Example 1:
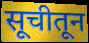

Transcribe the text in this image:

सूचीतून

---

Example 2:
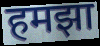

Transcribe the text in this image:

हमझा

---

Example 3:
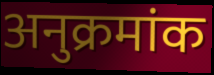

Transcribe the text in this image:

अनुक्रमांक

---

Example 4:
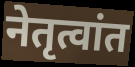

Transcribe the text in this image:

नेतृत्वांत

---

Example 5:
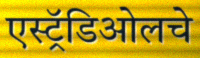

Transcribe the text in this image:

एस्ट्रॅडिओलचे